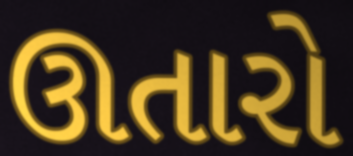
ઊતારો